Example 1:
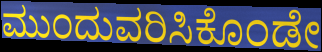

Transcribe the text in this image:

ಮುಂದುವರಿಸಿಕೊಂಡೇ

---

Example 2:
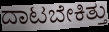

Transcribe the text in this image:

ದಾಟಬೇಕಿತ್ತು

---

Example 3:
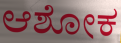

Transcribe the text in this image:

ಆಶೋಕ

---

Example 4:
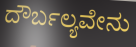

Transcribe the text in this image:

ದೌರ್ಬಲ್ಯವೇನು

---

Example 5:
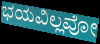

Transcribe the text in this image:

ಭಯವಿಲ್ಲವೋ